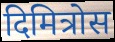
दिमित्रोस